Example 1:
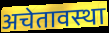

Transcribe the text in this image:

अचेतावस्था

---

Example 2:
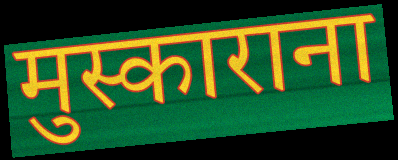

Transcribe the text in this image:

मुस्काराना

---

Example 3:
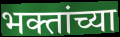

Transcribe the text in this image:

भक्तांच्या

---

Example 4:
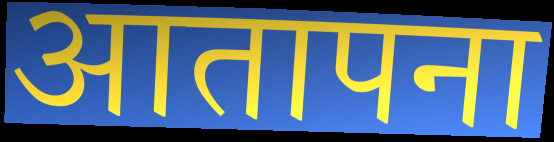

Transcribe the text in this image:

आतापना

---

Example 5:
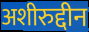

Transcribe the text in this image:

अशीरुद्दीन